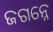
ଜଗନ୍ନେ